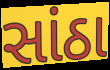
સાંઠા